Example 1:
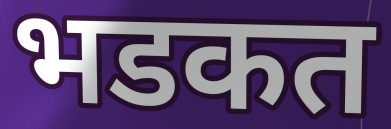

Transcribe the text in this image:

भडकत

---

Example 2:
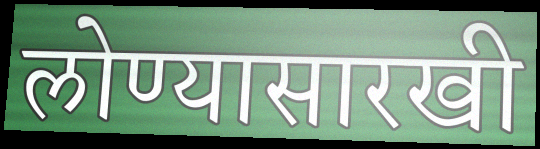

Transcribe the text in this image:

लोण्यासारखी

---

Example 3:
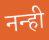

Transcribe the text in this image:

नन्ही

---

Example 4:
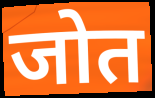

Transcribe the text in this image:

जोत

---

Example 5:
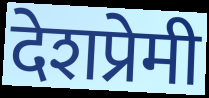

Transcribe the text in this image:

देशप्रेमी